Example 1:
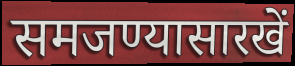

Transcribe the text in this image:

समजण्यासारखें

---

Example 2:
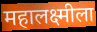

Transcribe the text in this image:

महालक्ष्मीला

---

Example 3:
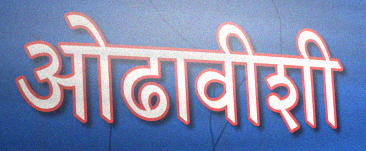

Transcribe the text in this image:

ओढावीशी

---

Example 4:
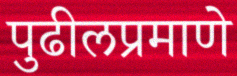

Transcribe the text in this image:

पुढीलप्रमाणे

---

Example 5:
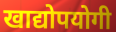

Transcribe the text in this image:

खाद्योपयोगी